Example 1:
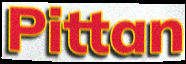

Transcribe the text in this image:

Pittan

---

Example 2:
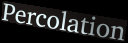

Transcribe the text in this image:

Percolation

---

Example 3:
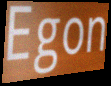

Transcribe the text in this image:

Egon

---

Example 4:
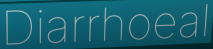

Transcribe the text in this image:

Diarrhoeal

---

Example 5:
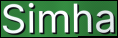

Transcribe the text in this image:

Simha